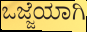
ಒಜ್ಜೆಯಾಗಿ